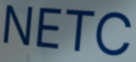
NETC